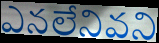
ఎనలేనివని